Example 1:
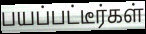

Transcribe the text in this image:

பயப்பட்டீர்கள்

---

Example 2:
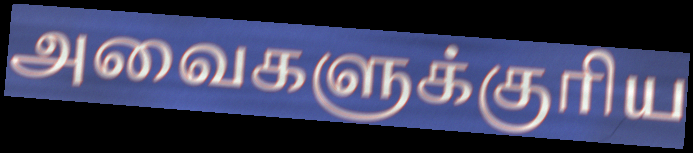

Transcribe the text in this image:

அவைகளுக்குரிய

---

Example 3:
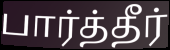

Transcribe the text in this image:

பார்த்தீர்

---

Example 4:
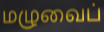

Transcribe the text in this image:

மழுவைப்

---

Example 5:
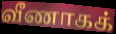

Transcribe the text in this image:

வீணாகக்